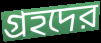
গ্রহদের